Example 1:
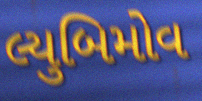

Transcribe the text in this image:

લ્યુબિમોવ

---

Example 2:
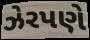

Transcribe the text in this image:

ઝેરપણે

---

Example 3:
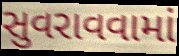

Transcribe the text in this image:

સુવરાવવામાં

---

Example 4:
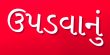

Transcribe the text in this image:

ઉપડવાનું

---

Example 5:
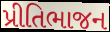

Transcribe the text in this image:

પ્રીતિભાજન